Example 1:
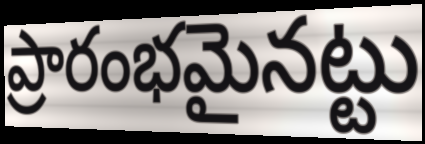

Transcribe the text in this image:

ప్రారంభమైనట్టు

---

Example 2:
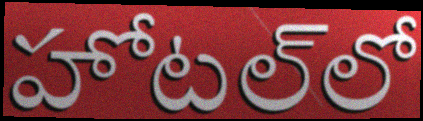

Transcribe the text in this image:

హోటల్‌లో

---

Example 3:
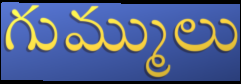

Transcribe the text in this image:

గుమ్ములు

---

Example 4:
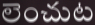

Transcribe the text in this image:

లెంచుట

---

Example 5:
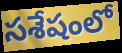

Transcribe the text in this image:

సశేషంలో